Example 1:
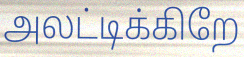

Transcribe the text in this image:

அலட்டிக்கிறே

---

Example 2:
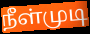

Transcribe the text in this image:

நீள்முடி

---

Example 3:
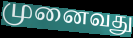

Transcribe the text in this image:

முனைவது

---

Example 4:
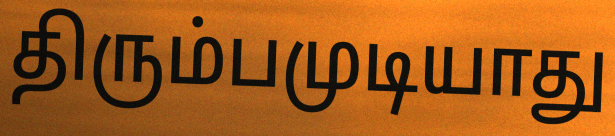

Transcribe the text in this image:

திரும்பமுடியாது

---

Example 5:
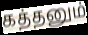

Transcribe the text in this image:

கத்தனும்